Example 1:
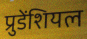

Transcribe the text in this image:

प्रुडेंशियल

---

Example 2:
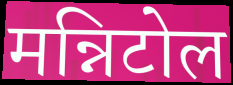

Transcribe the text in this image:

मन्निटोल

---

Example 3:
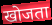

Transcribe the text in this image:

खोजता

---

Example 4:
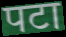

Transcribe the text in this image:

पटा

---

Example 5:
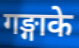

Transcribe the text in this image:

गङ्गाके